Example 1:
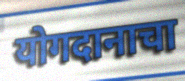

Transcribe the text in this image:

योगदानाचा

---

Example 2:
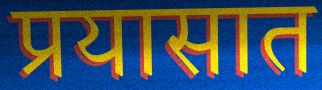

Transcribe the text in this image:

प्रयासात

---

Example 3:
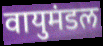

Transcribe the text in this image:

वायुमंडल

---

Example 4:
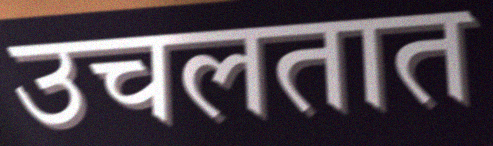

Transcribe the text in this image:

उचलतात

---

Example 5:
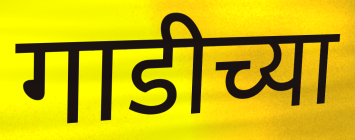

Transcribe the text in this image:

गाडीच्या